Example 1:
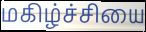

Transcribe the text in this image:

மகிழ்ச்சியை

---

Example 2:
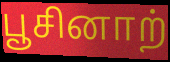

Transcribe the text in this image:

பூசினாற்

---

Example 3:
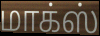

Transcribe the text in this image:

மாக்ஸ்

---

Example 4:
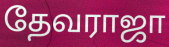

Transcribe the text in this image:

தேவராஜா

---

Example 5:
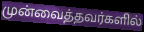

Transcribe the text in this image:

முன்வைத்தவர்களில்